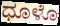
ಧೂಳೊ